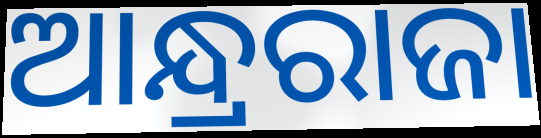
ଆନ୍ଧ୍ରରାଜା